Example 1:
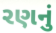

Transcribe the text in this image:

રણનું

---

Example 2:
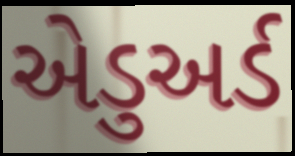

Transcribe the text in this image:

એડુઅર્ડ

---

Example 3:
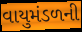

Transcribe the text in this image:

વાયુમંડળની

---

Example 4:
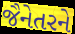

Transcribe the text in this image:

જૈનેતરને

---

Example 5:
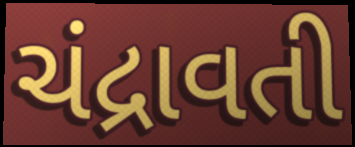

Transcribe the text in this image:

ચંદ્રાવતી